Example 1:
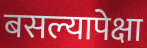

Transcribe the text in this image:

बसल्यापेक्षा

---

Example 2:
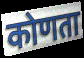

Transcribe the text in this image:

कोणता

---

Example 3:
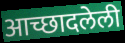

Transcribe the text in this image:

आच्छादलेली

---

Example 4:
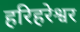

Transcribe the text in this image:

हरिहरेश्वर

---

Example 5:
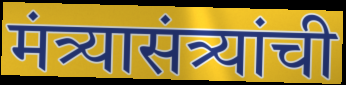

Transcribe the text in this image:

मंत्र्यासंत्र्यांची